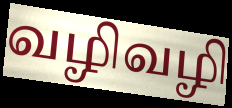
வழிவழி